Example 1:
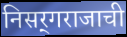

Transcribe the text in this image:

निसर्गराजाची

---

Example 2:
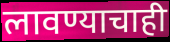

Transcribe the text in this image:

लावण्याचाही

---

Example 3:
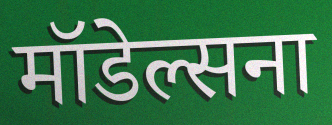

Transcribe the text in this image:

मॉडेल्सना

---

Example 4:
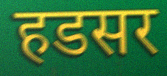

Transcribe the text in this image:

हडसर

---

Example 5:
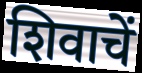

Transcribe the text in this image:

शिवाचें